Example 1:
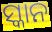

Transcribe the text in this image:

ସ୍କାନ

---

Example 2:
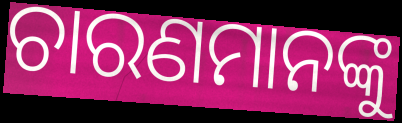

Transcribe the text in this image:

ଚାରଣମାନଙ୍କୁ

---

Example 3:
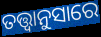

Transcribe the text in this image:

ତତ୍ତ୍ୱାନୁସାରେ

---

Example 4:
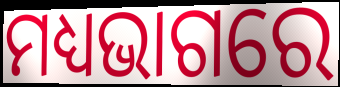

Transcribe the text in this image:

ମଧ୍ୟଭାଗରେ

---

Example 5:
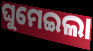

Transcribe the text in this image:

ଘୁମେଇଲା